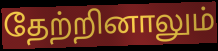
தேற்றினாலும்